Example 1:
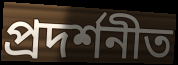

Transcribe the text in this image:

প্ৰদৰ্শনীত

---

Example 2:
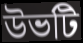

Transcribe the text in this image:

উভটি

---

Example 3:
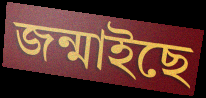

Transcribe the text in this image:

জন্মাইছে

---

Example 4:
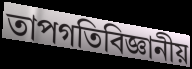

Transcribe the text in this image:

তাপগতিবিজ্ঞানীয়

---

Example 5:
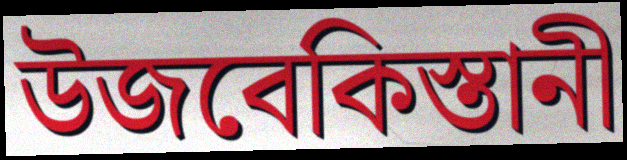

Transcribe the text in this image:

উজবেকিস্তানী